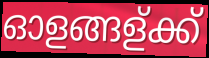
ഓളങ്ങള്ക്ക്